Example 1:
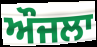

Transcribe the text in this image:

ਔਜਲਾ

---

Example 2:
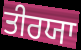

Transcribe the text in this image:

ਤੀਰਯਾ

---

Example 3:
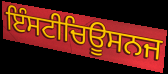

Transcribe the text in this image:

ਇੰਸਟੀਚਿਊਸਨਜ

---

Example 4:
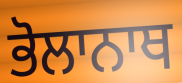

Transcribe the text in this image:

ਭੋਲਾਨਾਥ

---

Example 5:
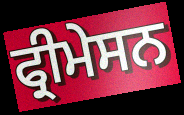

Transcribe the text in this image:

ਫ੍ਰੀਮੇਸਨ